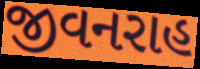
જીવનરાહ